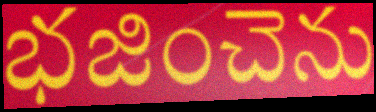
భజించెను